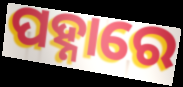
ପହ୍ନାରେ